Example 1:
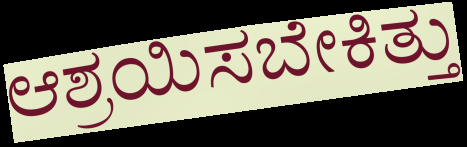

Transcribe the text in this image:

ಆಶ್ರಯಿಸಬೇಕಿತ್ತು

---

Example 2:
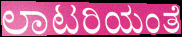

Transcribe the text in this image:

ಲಾಟರಿಯಂತೆ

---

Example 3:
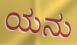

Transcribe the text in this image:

ಯನು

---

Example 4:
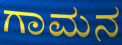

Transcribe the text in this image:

ಗಾಮನ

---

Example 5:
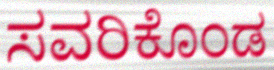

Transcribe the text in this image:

ಸವರಿಕೊಂಡ